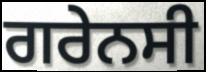
ਗਰੇਨਸੀ